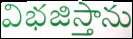
విభజిస్తాను